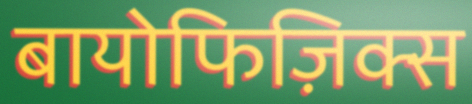
बायोफिज़िक्स